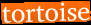
tortoise